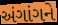
અંગાંગને